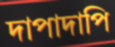
দাপাদাপি